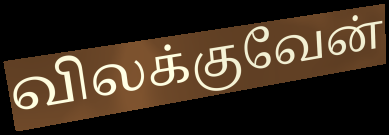
விலக்குவேன்